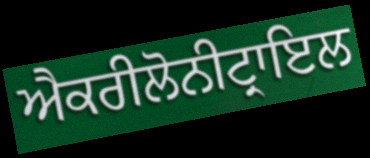
ਐਕਰੀਲੋਨੀਟ੍ਰਾਇਲ